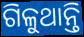
ଗିଳୁଥାନ୍ତି